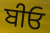
ਬੀਓ